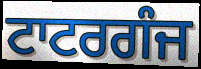
ਟਾਟਰਗੰਜ